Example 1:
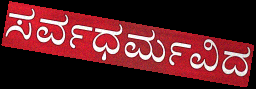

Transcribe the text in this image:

ಸರ್ವಧರ್ಮವಿದ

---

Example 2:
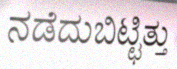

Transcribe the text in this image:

ನಡೆದುಬಿಟ್ಟಿತ್ತು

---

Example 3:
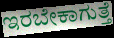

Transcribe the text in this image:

ಇರಬೇಕಾಗುತ್ತೆ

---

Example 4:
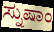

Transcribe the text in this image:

ಸ್ನುಷಾಂ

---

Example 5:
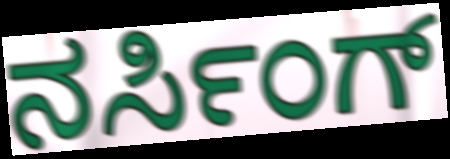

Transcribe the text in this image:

ನರ್ಸಿಂಗ್